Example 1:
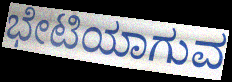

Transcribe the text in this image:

ಭೇಟಿಯಾಗುವ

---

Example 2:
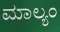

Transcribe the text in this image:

ಮಾಲ್ಯಂ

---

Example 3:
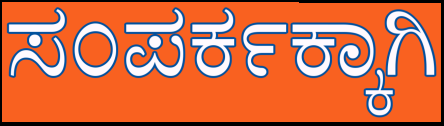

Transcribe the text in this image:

ಸಂಪರ್ಕಕ್ಕಾಗಿ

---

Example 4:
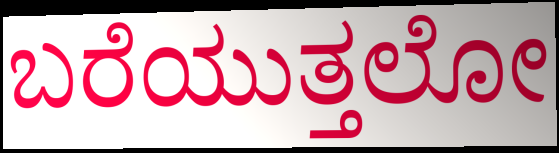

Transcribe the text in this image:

ಬರೆಯುತ್ತಲೋ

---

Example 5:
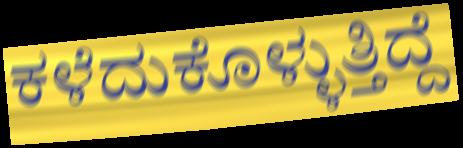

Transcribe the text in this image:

ಕಳೆದುಕೊಳ್ಳುತ್ತಿದ್ದೆ